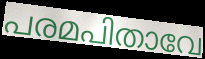
പരമപിതാവേ